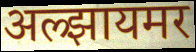
अल्झायमर